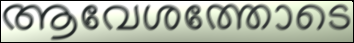
ആവേശത്തോടെ